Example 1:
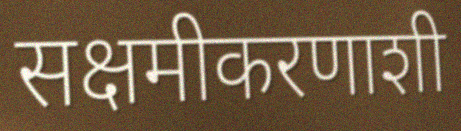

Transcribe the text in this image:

सक्षमीकरणाशी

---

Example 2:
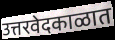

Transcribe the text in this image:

उत्तरवेदकाळात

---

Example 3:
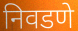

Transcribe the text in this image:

निवडणे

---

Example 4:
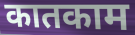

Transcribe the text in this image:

कातकाम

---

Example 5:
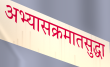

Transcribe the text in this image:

अभ्यासक्रमातसुद्धा